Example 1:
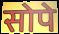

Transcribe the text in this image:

सोपे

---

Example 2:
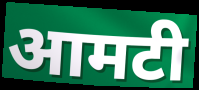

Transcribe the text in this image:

आमटी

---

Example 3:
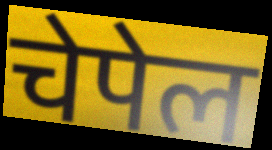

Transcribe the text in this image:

चेपेल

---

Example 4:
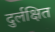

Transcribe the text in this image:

दुर्लक्षित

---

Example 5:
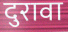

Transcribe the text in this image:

दुरावा